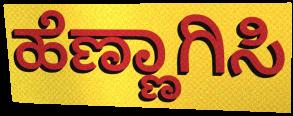
ಹೆಣ್ಣಾಗಿಸಿ